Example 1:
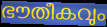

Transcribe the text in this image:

ഭൗതീകവും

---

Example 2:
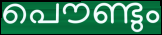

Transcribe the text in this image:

പൌണ്ടും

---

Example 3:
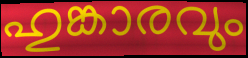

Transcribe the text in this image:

ഹുങ്കാരവും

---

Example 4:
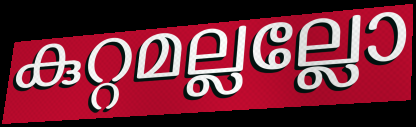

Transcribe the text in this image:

കുറ്റമല്ലല്ലോ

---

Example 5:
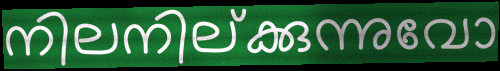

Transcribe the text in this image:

നിലനില്ക്കുന്നുവോ